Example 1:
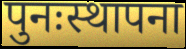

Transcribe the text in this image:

पुनःस्थापना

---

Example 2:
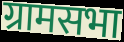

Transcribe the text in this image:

ग्रामसभा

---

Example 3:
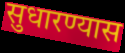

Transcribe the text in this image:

सुधारण्यास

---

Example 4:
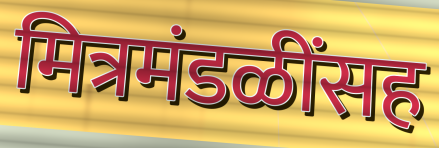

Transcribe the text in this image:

मित्रमंडळींसह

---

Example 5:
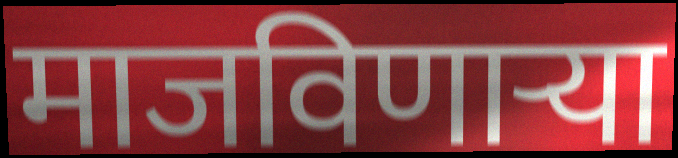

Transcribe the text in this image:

माजविणाऱ्या